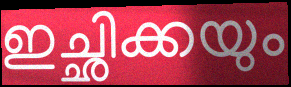
ഇച്ഛിക്കയും